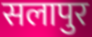
सलापुर